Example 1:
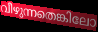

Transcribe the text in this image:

വീഴുന്നതെങ്കിലോ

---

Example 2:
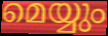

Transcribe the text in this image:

മെയ്യും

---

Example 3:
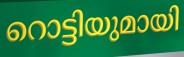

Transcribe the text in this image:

റൊട്ടിയുമായി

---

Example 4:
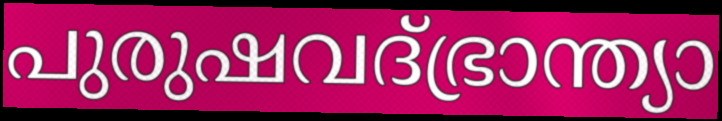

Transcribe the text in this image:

പുരുഷവദ്ഭ്രാന്ത്യാ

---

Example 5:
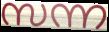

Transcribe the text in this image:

സന്ന